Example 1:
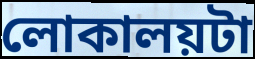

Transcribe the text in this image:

লোকালয়টা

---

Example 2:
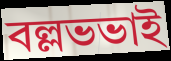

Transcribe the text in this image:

বল্লভভাই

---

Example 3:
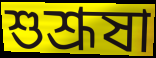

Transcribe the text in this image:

শুশ্রূষা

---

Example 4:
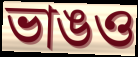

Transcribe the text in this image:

ভাঙও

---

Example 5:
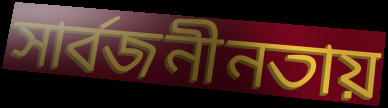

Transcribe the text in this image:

সার্বজনীনতায়